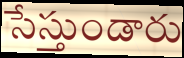
సేస్తుండారు